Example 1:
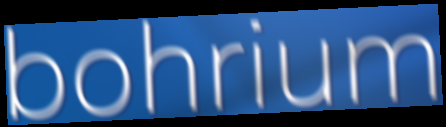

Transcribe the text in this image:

bohrium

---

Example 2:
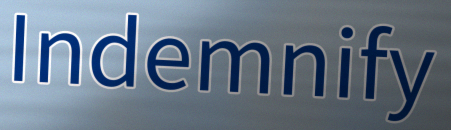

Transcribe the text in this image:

Indemnify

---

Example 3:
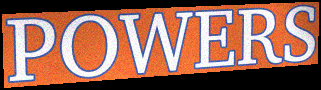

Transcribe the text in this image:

POWERS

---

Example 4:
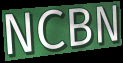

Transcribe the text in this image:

NCBN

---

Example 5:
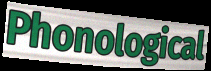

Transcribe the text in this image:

Phonological